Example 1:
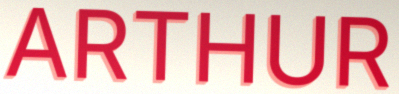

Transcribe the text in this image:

ARTHUR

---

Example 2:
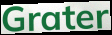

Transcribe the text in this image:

Grater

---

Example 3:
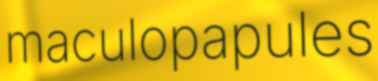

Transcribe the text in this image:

maculopapules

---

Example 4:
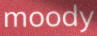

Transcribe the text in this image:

moody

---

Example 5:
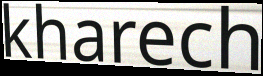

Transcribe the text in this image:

kharech